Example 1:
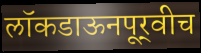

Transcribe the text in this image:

लॉकडाऊनपूर्वीच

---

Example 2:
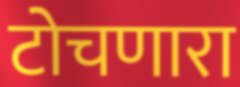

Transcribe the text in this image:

टोचणारा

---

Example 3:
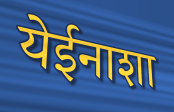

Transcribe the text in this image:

येईनाशा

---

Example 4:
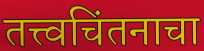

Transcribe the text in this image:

तत्त्वचिंतनाचा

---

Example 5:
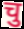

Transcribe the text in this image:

चु